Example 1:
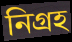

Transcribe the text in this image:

নিগ্রহ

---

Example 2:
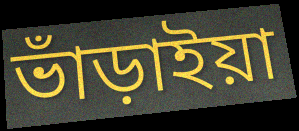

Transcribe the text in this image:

ভাঁড়াইয়া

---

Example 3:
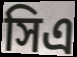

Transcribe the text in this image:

সিএ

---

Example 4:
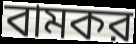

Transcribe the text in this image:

বামকর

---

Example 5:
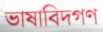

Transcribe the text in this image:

ভাষাবিদগণ